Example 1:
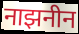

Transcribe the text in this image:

नाझनीन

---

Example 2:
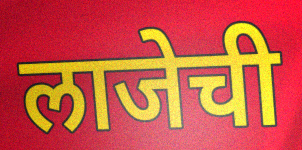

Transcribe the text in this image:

लाजेची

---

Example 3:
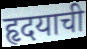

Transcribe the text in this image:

हृदयाची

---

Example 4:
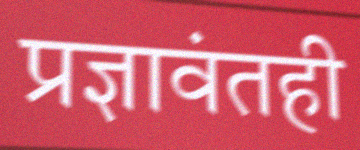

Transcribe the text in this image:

प्रज्ञावंतही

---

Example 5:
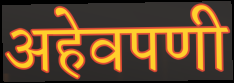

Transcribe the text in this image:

अहेवपणी